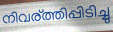
നിവര്ത്തിപ്പിടിച്ചു